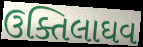
ઉક્તિલાઘવ